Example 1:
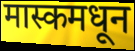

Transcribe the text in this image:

मास्कमधून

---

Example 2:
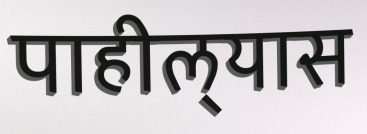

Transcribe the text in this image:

पाहील्यास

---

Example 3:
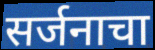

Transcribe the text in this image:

सर्जनाचा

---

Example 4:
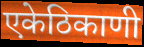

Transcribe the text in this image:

एकेठिकाणी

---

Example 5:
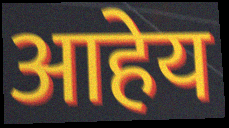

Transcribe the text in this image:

आहेय